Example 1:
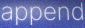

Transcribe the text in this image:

append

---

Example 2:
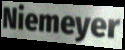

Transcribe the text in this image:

Niemeyer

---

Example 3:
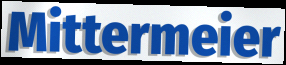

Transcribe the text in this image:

Mittermeier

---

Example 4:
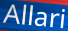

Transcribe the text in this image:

Allari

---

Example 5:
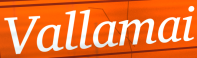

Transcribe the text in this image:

Vallamai